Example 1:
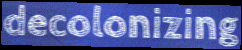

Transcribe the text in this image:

decolonizing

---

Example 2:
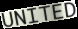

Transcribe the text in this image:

UNITED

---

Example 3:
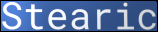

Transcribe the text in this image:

Stearic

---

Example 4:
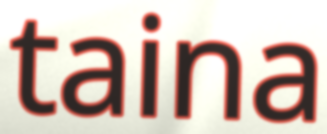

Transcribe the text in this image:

taina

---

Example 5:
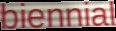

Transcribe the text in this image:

biennial